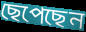
ছেপেছেন